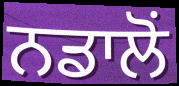
ਨਡਾਲੋਂ